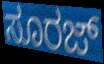
ಸೂರಜ್